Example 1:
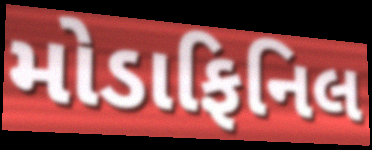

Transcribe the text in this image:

મોડાફિનિલ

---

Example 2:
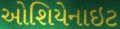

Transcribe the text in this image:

ઓશિયેનાઇટ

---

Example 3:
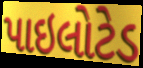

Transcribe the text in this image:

પાઇલોટેડ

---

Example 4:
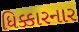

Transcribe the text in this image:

ધિક્કારનાર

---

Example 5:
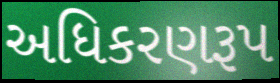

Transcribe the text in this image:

અધિકરણરૂપ